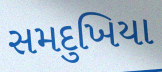
સમદુખિયા